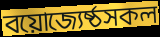
বয়োজ্যেষ্ঠসকল